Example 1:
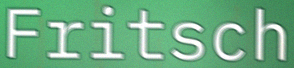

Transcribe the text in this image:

Fritsch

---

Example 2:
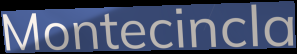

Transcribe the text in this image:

Montecincla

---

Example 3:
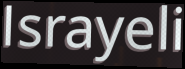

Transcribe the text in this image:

Israyeli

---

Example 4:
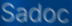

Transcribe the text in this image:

Sadoc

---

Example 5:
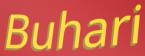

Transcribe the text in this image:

Buhari